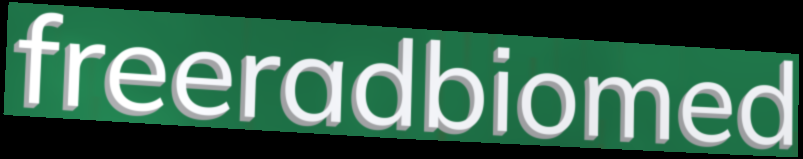
freeradbiomed